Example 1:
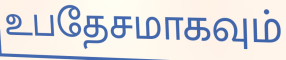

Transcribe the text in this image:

உபதேசமாகவும்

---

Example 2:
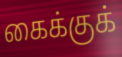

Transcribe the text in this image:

கைக்குக்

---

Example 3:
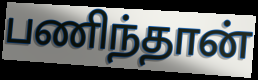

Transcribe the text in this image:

பணிந்தான்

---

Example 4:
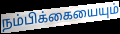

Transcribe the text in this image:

நம்பிக்கையையும்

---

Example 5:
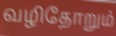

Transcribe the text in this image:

வழிதோறும்